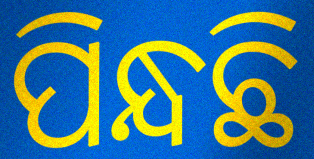
ପିନ୍ଧଛି